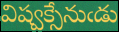
విష్వక్సేనుఁడు